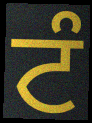
ਟੰ